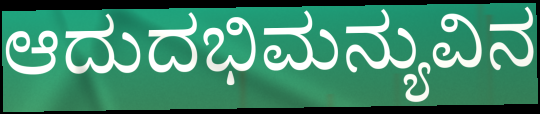
ಆದುದಭಿಮನ್ಯುವಿನ